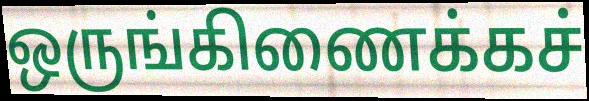
ஒருங்கிணைக்கச்